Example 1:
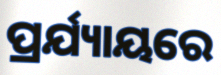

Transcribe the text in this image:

ପ୍ରର୍ଯ୍ୟାୟରେ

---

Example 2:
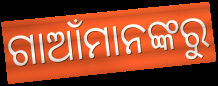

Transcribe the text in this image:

ଗାଆଁମାନଙ୍କରୁ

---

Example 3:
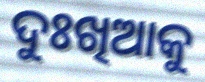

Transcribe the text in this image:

ଦୁଃଖିଆକୁ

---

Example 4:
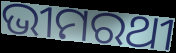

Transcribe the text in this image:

ଭୀମରଥୀ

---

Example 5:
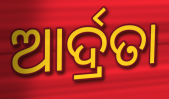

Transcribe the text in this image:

ଆର୍ଦ୍ରତା